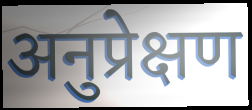
अनुप्रेक्षण